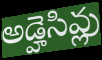
అడ్హెసివ్లు